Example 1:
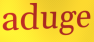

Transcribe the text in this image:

aduge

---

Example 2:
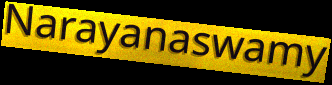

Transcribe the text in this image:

Narayanaswamy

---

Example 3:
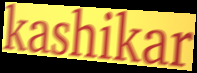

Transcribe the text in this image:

kashikar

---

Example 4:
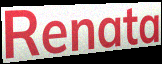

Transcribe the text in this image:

Renata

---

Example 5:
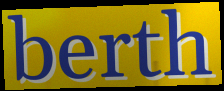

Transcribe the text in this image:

berth